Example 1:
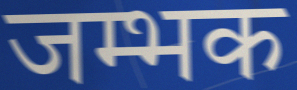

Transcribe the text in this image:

जम्भक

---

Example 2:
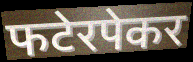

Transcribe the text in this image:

फटेरपेकर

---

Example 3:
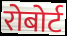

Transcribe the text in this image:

रोबोर्ट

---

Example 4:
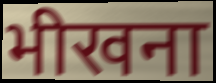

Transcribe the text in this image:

भीखना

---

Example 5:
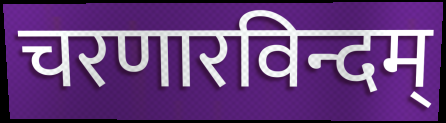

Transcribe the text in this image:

चरणारविन्दम्